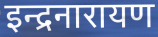
इन्द्रनारायण